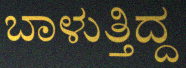
ಬಾಳುತ್ತಿದ್ದ